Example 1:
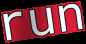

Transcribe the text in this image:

run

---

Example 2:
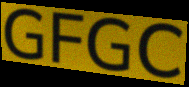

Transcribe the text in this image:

GFGC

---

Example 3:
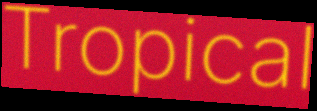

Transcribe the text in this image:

Tropical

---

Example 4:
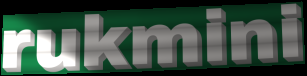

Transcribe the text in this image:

rukmini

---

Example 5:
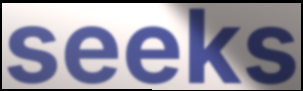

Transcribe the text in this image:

seeks